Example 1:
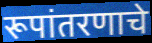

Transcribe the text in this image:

रूपांतरणाचे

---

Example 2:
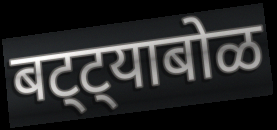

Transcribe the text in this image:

बट्ट्याबोळ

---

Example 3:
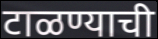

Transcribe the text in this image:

टाळण्याची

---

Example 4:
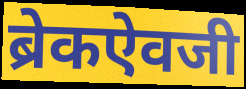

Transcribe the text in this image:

ब्रेकऐवजी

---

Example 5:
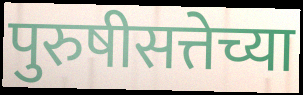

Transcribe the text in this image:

पुरुषीसत्तेच्या